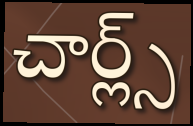
చార్ల్స్